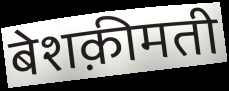
बेशक़ीमती